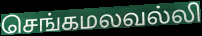
செங்கமலவல்லி